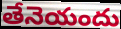
తేనెయందు